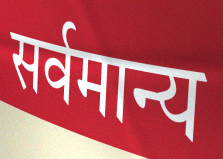
सर्वमान्य